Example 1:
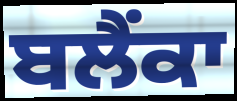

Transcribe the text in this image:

ਬਲੈਂਕਾ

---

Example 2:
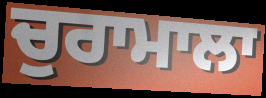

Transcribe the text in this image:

ਚੁਰਾਮਾਲਾ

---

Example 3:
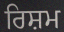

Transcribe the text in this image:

ਰਿਸ਼ਮ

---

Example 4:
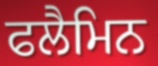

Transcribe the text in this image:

ਫਲੈਮਿਨ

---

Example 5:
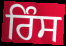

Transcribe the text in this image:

ਰਿੰਸ